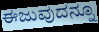
ಈಜುವುದನ್ನೂ